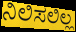
ನಿಲಿಸಲಿಲ್ಲ